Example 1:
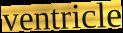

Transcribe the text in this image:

ventricle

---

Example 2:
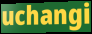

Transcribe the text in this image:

uchangi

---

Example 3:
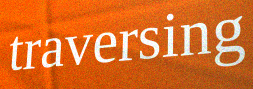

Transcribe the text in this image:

traversing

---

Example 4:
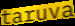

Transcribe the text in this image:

taruva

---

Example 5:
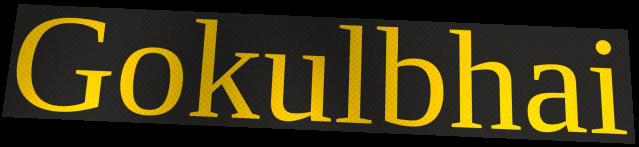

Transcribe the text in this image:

Gokulbhai